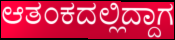
ಆತಂಕದಲ್ಲಿದ್ದಾಗ